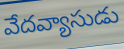
వేదవ్యాసుడు